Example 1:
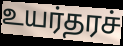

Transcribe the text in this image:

உயர்தரச்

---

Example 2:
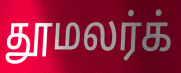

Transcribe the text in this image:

தூமலர்க்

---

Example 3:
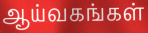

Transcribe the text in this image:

ஆய்வகங்கள்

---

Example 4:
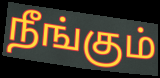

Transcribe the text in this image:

நீங்கும்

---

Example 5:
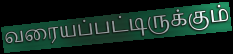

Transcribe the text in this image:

வரையப்பட்டிருக்கும்